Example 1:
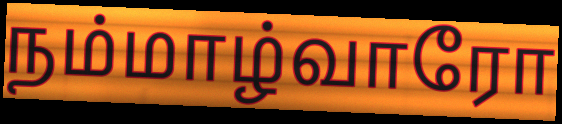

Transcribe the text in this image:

நம்மாழ்வாரோ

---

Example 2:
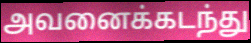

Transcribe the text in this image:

அவனைக்கடந்து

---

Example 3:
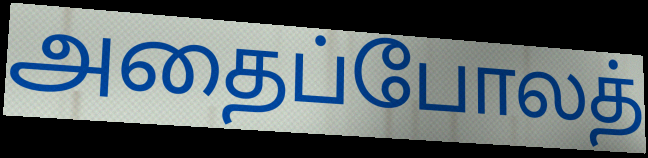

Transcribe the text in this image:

அதைப்போலத்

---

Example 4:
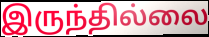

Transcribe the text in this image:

இருந்தில்லை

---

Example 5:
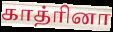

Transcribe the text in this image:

காத்ரினா